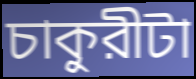
চাকুরীটা